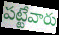
పట్టేవారు